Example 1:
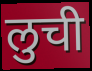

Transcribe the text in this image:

लुची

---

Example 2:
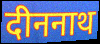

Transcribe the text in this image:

दीननाथ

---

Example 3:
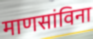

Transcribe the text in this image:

माणसांविना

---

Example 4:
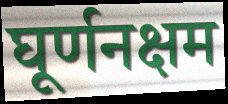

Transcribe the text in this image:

घूर्णनक्षम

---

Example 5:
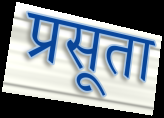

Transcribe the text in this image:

प्रसूता